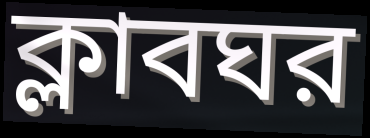
ক্লাবঘর